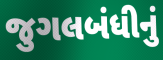
જુગલબંધીનું